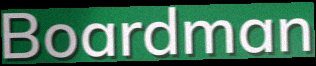
Boardman